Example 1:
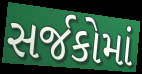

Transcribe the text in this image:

સર્જકોમાં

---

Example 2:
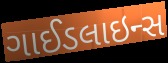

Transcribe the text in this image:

ગાઈડલાઇન્સ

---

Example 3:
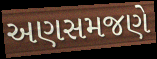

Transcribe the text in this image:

અણસમજણે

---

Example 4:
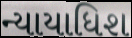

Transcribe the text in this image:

ન્યાયાધિશ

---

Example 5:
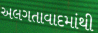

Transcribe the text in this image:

અલગતાવાદમાંથી